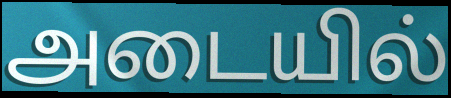
அடையில்